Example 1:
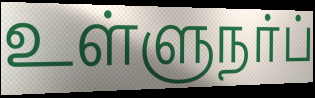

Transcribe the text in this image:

உள்ளுநர்ப்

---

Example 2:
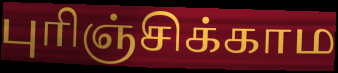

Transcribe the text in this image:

புரிஞ்சிக்காம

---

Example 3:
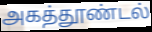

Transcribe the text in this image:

அகத்தூண்டல்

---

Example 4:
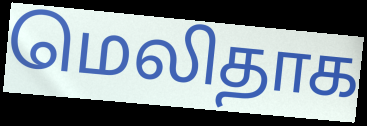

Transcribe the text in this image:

மெலிதாக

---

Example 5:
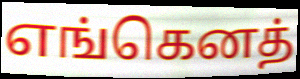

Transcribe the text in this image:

எங்கெனத்